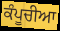
ਕੰਪੂਚੀਆ